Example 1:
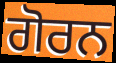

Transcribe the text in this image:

ਗੋਰਨ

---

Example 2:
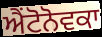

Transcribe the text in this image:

ਐਂਟੋਨੋਵਕਾ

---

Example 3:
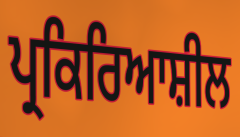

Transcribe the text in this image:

ਪ੍ਰਕਿਰਿਆਸ਼ੀਲ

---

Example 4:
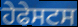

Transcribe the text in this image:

ਹੇਫੇਸਟਸ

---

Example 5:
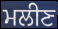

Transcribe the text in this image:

ਮਲੀਣ